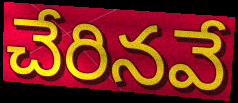
చేరినవే